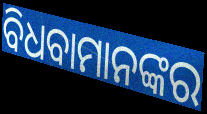
ବିଧବାମାନଙ୍କର